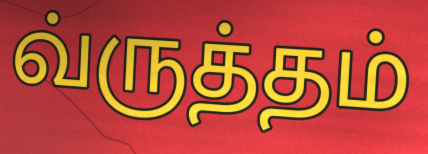
வ்ருத்தம்